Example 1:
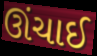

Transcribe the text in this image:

ઊંચાઈ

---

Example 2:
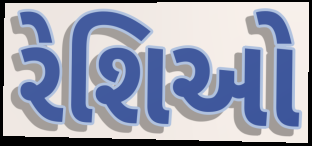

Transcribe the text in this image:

રેશિઓ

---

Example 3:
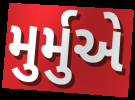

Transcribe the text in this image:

મુર્મુએ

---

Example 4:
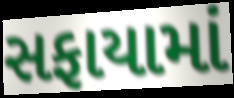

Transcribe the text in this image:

સફાયામાં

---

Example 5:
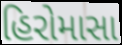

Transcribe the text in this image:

હિરોમાસા